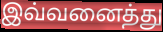
இவ்வனைத்து